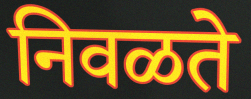
निवळते